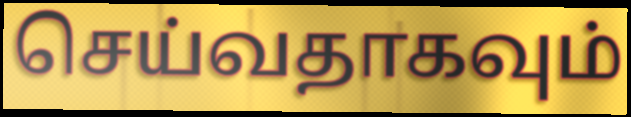
செய்வதாகவும்